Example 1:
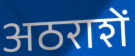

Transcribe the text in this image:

अठराशें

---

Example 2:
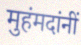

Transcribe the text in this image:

मुहंमदांनीं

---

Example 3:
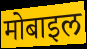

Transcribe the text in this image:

मोबाइल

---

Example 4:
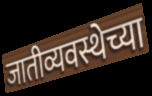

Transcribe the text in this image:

जातीव्यवस्थेच्या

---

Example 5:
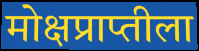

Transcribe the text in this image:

मोक्षप्राप्तीला